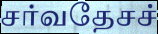
சர்வதேசச்